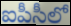
ఐపీసీలో